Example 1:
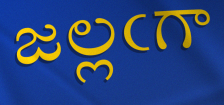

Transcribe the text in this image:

జల్లఁగా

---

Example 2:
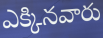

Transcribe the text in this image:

ఎక్కినవారు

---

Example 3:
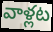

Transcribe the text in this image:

వాళ్లట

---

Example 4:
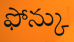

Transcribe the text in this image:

ఫోన్కు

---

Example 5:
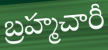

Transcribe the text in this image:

బ్రహ్మచారీ